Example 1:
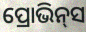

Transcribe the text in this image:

ପ୍ରୋଭିନ୍‌ସ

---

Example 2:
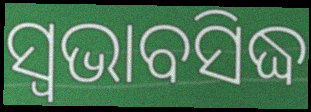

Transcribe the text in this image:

ସ୍ଵଭାବସିଦ୍ଧ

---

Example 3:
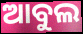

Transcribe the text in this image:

ଆବୁଲ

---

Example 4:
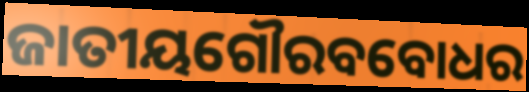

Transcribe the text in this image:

ଜାତୀୟଗୌରବବୋଧର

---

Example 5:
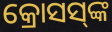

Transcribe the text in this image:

କ୍ରୋସସ୍‌ଙ୍କ